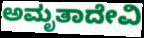
ಅಮೃತಾದೇವಿ